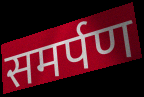
समर्पण